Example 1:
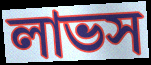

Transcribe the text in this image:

লাভস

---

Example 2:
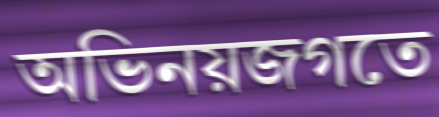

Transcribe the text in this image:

অভিনয়জগতে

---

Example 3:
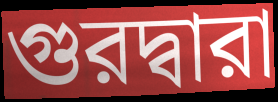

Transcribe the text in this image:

গুরদ্বারা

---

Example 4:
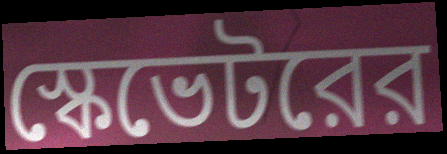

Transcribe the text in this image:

স্কেভেটরের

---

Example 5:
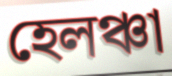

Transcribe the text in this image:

হেলঞ্চা